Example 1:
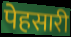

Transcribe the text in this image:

पेहसारी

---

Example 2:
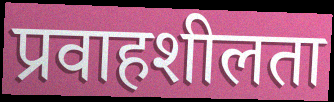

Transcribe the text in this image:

प्रवाहशीलता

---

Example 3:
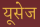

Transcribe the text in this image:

यूसेज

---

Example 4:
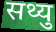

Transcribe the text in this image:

सथ्यु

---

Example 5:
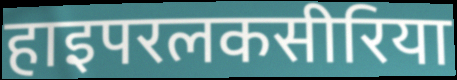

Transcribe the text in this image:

हाइपरलकसीरिया